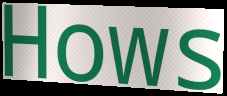
Hows